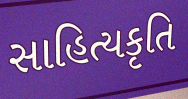
સાહિત્યકૃતિ